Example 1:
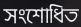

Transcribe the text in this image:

সংশোধিত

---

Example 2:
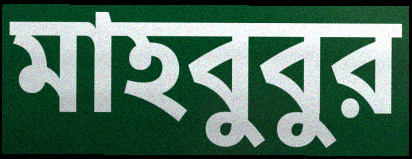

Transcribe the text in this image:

মাহবুবুর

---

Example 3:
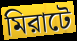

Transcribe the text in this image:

মিরাটে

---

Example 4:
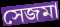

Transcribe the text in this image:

সেজমা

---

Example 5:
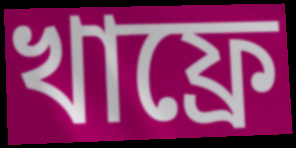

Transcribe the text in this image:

খাফ্রে